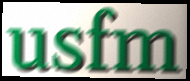
usfm